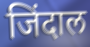
जिंदाल